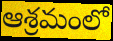
ఆశ్రమంలో